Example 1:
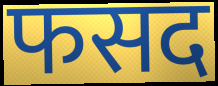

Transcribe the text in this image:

फसद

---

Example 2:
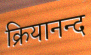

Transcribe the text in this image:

क्रियानन्द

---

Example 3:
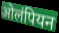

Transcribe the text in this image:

ओलंपियन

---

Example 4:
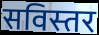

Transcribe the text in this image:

सविस्तर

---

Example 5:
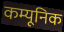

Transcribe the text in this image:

कम्यूनिक